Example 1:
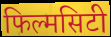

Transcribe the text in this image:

फिल्मसिटी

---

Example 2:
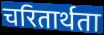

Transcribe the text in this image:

चरितार्थता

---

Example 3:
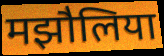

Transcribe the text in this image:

मझौलिया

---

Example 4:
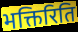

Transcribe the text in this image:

भक्तिरिति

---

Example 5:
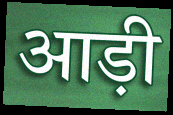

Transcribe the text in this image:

आड़ी